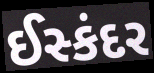
ઈસ્કંદર